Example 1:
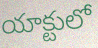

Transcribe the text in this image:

యాక్టులో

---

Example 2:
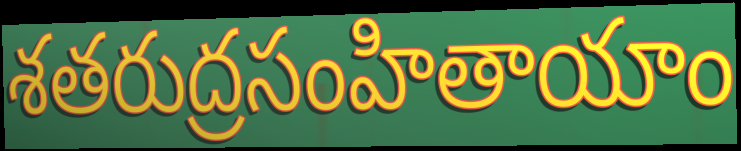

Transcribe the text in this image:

శతరుద్రసంహితాయాం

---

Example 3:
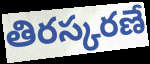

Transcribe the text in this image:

తిరస్కరణే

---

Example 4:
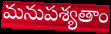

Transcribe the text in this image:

మనుపశ్యతాం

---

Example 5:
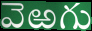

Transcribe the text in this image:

వెఱగు